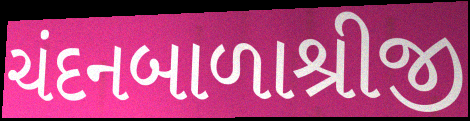
ચંદનબાળાશ્રીજી